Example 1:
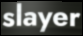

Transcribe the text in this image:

slayer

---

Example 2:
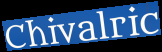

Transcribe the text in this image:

Chivalric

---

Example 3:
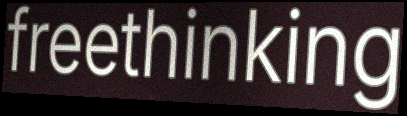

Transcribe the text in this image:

freethinking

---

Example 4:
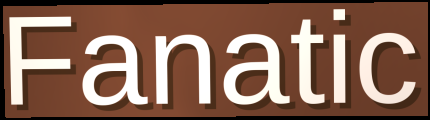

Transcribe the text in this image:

Fanatic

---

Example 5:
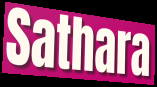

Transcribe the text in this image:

Sathara